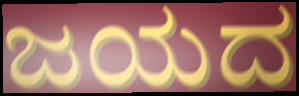
ಜಯದ